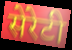
सेरेटी